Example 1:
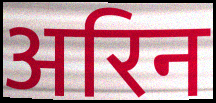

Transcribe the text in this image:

अरिन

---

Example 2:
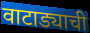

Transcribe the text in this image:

वाटाड्याची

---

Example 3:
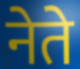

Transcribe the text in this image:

नेते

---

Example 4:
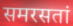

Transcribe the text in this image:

समरसतां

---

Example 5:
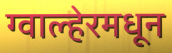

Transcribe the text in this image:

ग्वाल्हेरमधून